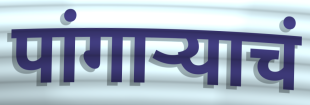
पांगाऱ्याचं